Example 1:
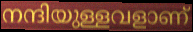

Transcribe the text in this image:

നന്ദിയുള്ളവളാണ്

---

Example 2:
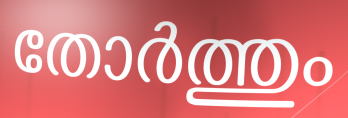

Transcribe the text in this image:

തോർത്തും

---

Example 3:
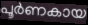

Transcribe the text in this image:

പൂർണകായ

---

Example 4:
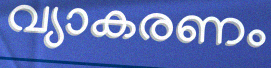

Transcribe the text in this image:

വ്യാകരണം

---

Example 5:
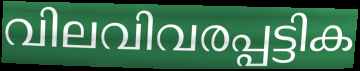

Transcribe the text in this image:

വിലവിവരപ്പട്ടിക